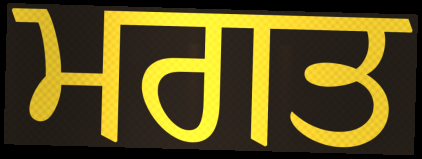
ਮਗਤ